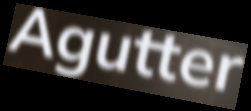
Agutter